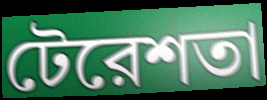
টেরেশতা